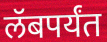
लॅबपर्यंत